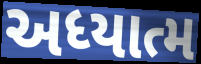
અધ્યાત્મ